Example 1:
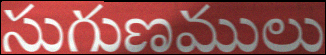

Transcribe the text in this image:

సుగుణములు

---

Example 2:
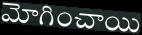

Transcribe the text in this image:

మోగించాయి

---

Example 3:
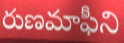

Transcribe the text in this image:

రుణమాఫీని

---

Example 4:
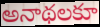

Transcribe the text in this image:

అనాథలకూ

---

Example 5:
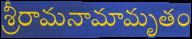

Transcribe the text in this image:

శ్రీరామనామామృతం